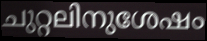
ചുറ്റലിനുശേഷം